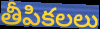
తీపికలలు